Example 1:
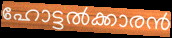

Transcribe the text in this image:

ഹോട്ടൽക്കാരൻ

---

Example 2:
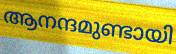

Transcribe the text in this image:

ആനന്ദമുണ്ടായി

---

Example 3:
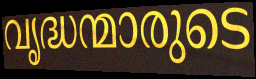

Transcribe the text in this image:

വൃദ്ധന്മാരുടെ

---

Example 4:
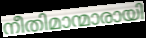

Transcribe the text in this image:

നീതിമാന്മാരായി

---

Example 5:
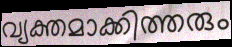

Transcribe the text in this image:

വ്യക്തമാക്കിത്തരും